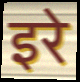
इरे